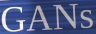
GANs